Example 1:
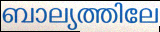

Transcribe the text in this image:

ബാല്യത്തിലേ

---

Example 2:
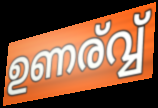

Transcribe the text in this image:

ഉണര്വ്വ്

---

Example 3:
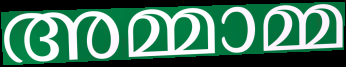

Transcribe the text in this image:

അമ്മാമ്മ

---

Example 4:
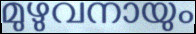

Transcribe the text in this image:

മുഴുവനായും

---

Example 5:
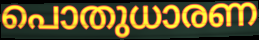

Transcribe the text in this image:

പൊതുധാരണ